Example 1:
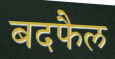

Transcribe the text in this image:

बदफैल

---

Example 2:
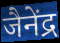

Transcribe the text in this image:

जैनेंद्र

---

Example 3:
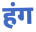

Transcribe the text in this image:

हंग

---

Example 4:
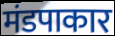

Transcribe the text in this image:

मंडपाकार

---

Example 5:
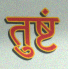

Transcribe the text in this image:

तुष्टं